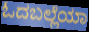
ಓದಬಲ್ಲೆಯಾ